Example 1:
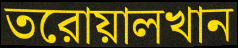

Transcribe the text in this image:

তরোয়ালখান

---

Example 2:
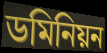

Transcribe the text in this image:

ডমিনিয়ন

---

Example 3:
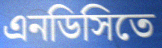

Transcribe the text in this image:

এনডিসিতে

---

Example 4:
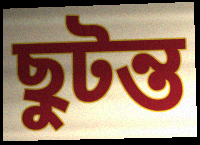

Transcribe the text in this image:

ছুটন্ত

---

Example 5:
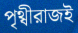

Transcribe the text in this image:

পৃথ্বীরাজই